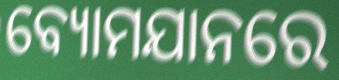
ବ୍ୟୋମଯାନରେ